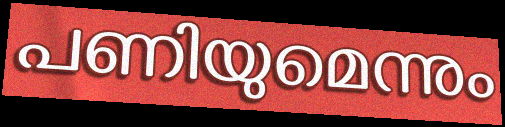
പണിയുമെന്നും